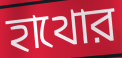
হাথোর